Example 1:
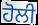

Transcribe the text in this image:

ਹੋਲੀ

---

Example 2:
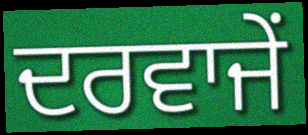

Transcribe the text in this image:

ਦਰਵਾਜੇਂ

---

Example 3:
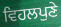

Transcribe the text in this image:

ਵਿਹਲਪੁਣੇ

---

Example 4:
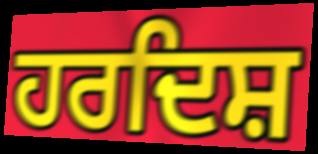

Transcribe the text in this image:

ਹਰਦਿਸ਼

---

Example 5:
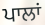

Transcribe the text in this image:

ਪਾਲਾਂ